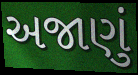
અજાણું